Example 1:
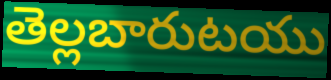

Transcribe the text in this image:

తెల్లబారుటయు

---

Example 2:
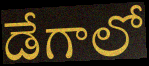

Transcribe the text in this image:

డేగాలో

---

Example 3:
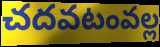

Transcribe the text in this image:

చదవటంవల్ల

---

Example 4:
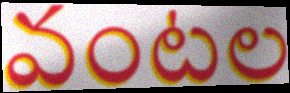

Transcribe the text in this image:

వంటల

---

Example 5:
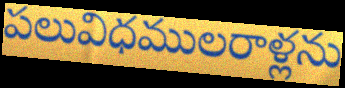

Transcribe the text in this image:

పలువిధములరాళ్లను